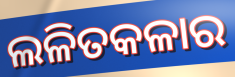
ଲଳିତକଳାର